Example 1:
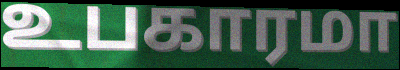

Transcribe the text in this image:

உபகாரமா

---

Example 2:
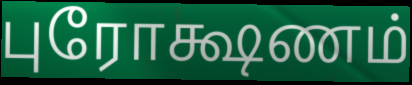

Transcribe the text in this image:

புரோக்ஷணம்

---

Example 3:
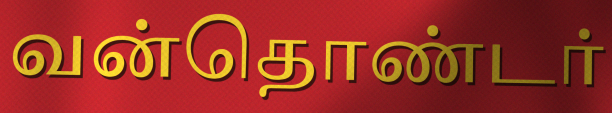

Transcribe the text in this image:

வன்தொண்டர்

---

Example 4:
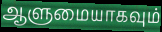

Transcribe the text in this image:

ஆளுமையாகவும்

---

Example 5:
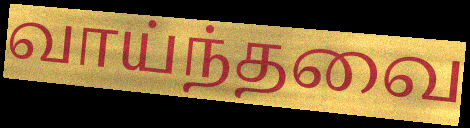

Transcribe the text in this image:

வாய்ந்தவை